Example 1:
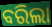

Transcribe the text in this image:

ବରିଲା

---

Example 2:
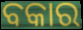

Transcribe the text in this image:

ବକାର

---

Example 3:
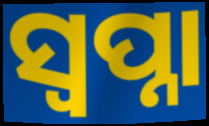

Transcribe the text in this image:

ସ୍ୱପ୍ନା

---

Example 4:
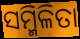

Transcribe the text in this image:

ସମ୍ମିଳିତା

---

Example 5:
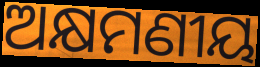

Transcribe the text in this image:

ଅକ୍ଷମଣୀୟ